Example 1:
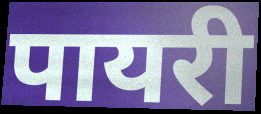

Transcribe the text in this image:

पायरी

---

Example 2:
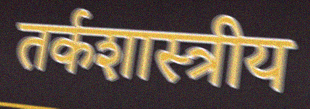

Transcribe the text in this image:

तर्कशास्त्रीय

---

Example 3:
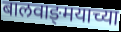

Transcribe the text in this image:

बालवाङ्‌मयाच्या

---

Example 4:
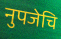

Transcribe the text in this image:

नुपजेचि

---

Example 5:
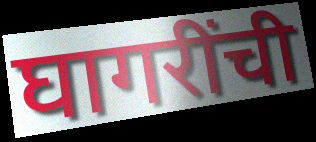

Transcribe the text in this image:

घागरींची